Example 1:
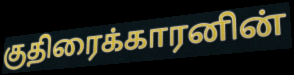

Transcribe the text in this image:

குதிரைக்காரனின்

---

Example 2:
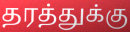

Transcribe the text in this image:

தரத்துக்கு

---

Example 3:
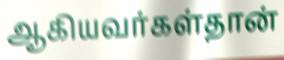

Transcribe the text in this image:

ஆகியவர்கள்தான்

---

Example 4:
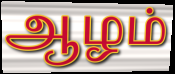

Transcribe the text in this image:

ஆழம்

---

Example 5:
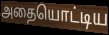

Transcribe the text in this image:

அதையொட்டிய